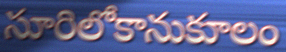
సూరిలోకానుకూలం